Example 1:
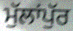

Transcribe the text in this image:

ਮੁੱਲਾਂਪੁੱਰ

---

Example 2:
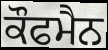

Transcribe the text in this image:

ਕੌਫਮੈਨ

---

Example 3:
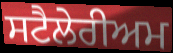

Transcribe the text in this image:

ਸਟੈਲੇਰੀਅਮ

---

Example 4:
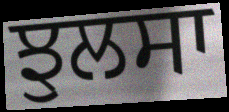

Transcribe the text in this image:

ਝੁਲਸਾ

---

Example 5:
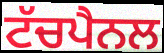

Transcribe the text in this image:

ਟੱਚਪੈਨਲ